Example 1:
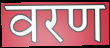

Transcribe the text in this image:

वरण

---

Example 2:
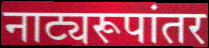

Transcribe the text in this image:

नाट्यरूपांतर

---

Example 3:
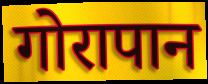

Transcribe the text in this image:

गोरापान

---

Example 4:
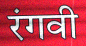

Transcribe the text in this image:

रंगवी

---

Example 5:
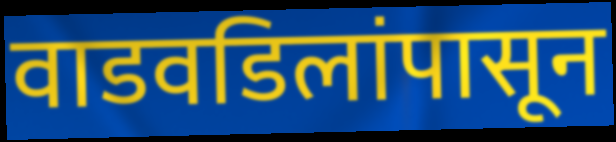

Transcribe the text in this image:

वाडवडिलांपासून